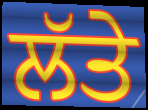
ਲੱਤੇ